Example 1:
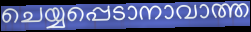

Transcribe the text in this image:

ചെയ്യപ്പെടാനാവാത്ത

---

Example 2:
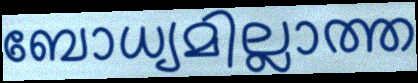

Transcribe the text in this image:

ബോധ്യമില്ലാത്ത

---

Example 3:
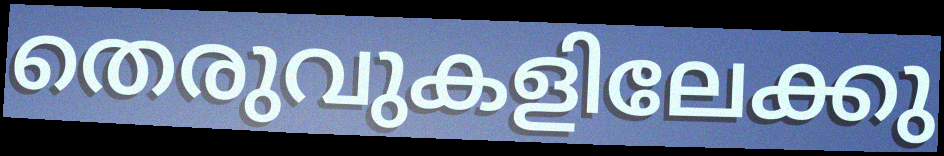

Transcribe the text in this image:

തെരുവുകളിലേക്കു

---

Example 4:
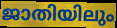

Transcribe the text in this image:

ജാതിയിലും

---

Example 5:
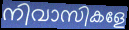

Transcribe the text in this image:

നിവാസികളേ